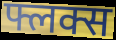
फ्लक्स